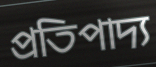
প্রতিপাদ্য